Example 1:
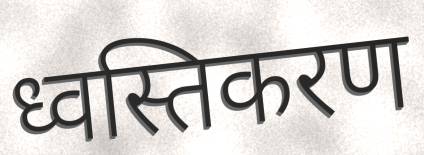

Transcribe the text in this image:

ध्वस्तिकरण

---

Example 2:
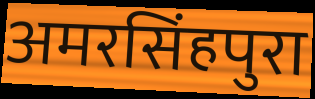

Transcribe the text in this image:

अमरसिंहपुरा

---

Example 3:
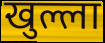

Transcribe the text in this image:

खुल्ला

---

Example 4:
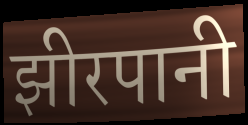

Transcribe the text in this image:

झीरपानी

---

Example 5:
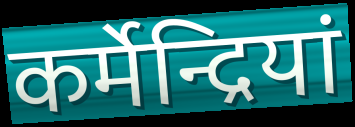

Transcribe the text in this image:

कर्मेन्द्रियां